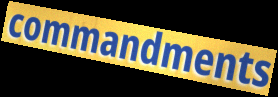
commandments